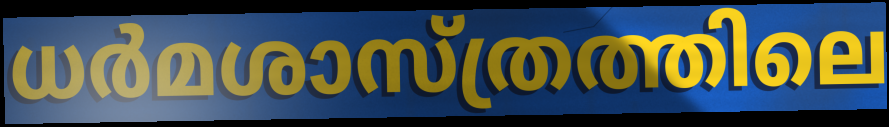
ധർമശാസ്ത്രത്തിലെ